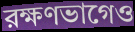
রক্ষণভাগেও